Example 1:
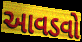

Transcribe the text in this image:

આવડવો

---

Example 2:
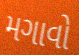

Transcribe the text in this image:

મગાવો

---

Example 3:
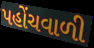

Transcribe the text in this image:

પહોંચવાળી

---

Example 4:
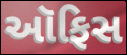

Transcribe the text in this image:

આૅફિસ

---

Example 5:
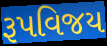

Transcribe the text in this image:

રૂપવિજય